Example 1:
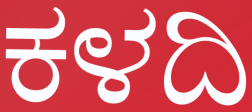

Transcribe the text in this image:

ಕಳದಿ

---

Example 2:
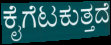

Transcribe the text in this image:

ಕೈಗೆಟಕುತ್ತದೆ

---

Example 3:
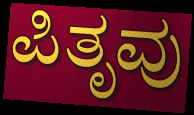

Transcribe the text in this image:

ಪಿತೃವು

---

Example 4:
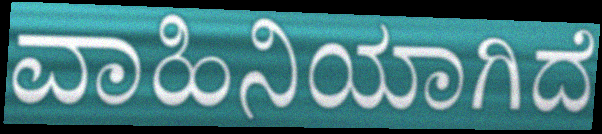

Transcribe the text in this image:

ವಾಹಿನಿಯಾಗಿದೆ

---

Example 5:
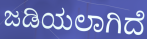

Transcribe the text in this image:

ಜಡಿಯಲಾಗಿದೆ